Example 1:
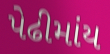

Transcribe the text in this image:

પેઢીમાંય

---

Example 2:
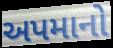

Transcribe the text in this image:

અપમાનો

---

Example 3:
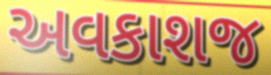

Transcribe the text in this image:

અવકાશજ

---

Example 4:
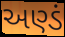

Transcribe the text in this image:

અણ્ડં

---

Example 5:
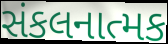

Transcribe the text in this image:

સંકલનાત્મક